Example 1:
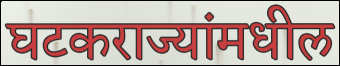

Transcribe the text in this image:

घटकराज्यांमधील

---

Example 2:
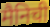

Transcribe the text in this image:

मैनिची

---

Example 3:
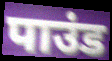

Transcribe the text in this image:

पाउंड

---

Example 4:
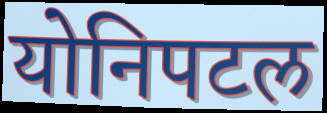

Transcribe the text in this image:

योनिपटल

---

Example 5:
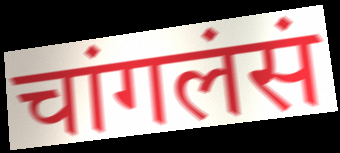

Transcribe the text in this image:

चांगलंसं